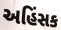
અહિંસક